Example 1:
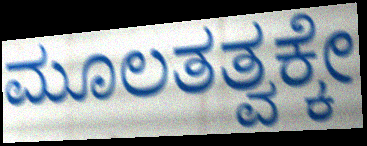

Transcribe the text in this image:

ಮೂಲತತ್ವಕ್ಕೇ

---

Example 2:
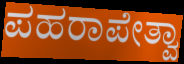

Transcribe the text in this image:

ಪಹರಾಪೇತ್ವಾ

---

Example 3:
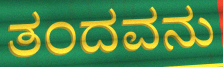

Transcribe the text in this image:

ತಂದವನು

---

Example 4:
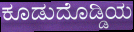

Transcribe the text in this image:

ಕೂಡುದೊಡ್ಡಿಯ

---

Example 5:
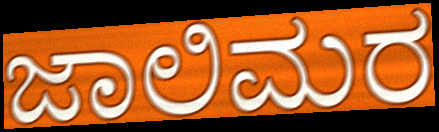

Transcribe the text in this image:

ಜಾಲಿಮರ